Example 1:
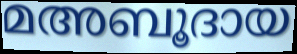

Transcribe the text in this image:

മഅബൂദായ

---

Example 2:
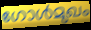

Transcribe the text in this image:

ഗോൾമുഖം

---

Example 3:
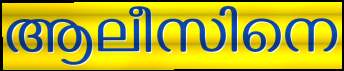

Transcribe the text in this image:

ആലീസിനെ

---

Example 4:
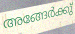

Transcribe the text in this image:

അങ്ങേർക്കു്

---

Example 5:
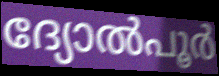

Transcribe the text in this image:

ദ്യോൽപൂർ